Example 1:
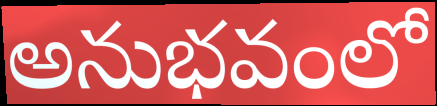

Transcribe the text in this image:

అనుభవంలో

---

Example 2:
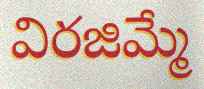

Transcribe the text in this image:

విరజిమ్మే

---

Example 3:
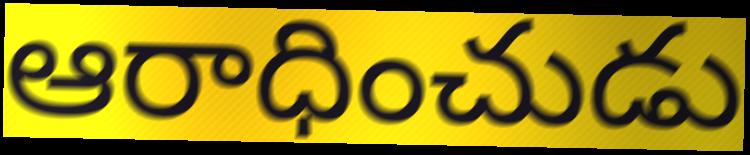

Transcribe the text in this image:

ఆరాధించుడు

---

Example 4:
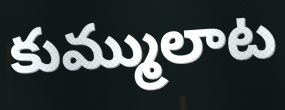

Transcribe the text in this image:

కుమ్ములాట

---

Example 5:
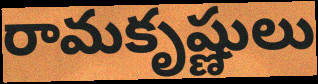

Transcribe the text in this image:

రామకృష్ణులు